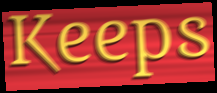
Keeps